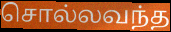
சொல்லவந்த